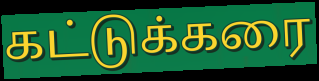
கட்டுக்கரை